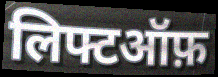
लिफ्टऑफ़